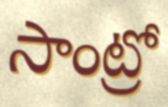
సాంట్రో